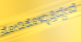
ನೋಡಿಕೊಳ್ಳುತ್ತಿದ್ದೇವೆ